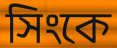
সিংকে